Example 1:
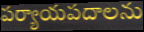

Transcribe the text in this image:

పర్యాయపదాలను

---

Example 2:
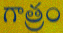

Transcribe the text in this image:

గాత్రం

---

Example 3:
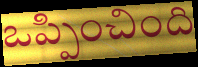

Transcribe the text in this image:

ఒప్పించింది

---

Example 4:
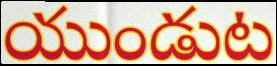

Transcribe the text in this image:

యుండుట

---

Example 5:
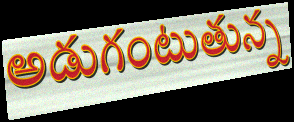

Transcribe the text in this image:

అడుగంటుతున్న